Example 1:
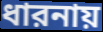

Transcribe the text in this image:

ধারনায়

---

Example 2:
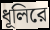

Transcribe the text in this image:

ধূলিরে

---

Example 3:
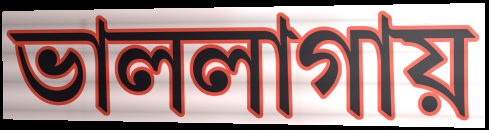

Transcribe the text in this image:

ভাললাগায়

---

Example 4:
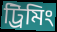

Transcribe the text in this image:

ট্রিমিং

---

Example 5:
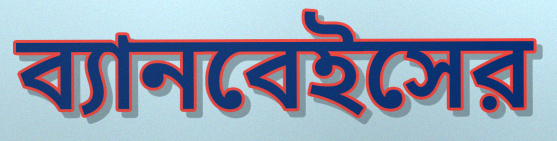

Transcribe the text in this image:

ব্যানবেইসের